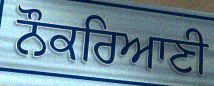
ਨੌਕਰਿਆਣੀ